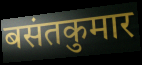
बसंतकुमार